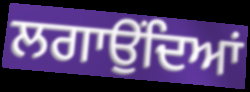
ਲਗਾਉੰਦਿਆਂ